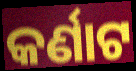
କର୍ଣାଟ